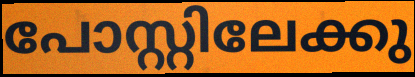
പോസ്റ്റിലേക്കു